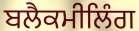
ਬਲੈਕਮੀਲਿੰਗ